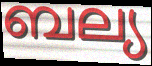
ബല്യ